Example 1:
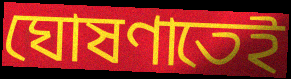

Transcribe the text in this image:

ঘোষণাতেই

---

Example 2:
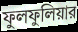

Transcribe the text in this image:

ফুলফুলিয়ার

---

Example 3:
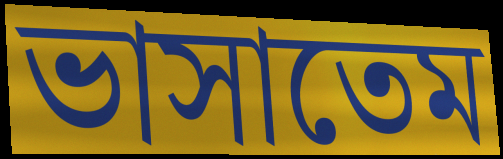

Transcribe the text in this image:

ভাসাতেম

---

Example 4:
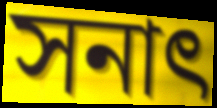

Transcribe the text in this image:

সনাৎ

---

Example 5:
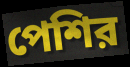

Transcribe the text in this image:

পেশির